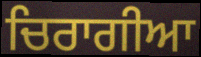
ਚਿਰਾਗੀਆ